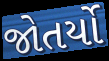
જોતર્યો